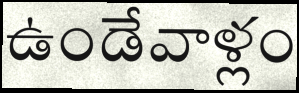
ఉండేవాళ్లం